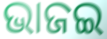
ଭାଜଇ